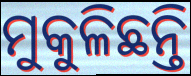
ମୁକୁଳିଛନ୍ତି